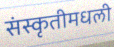
संस्कृतीमधली